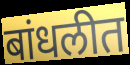
बांधलीत